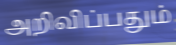
அறிவிப்பதும்